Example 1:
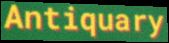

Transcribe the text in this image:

Antiquary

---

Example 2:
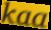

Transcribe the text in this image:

kaa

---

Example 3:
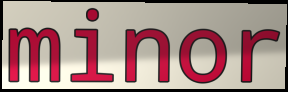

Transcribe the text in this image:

minor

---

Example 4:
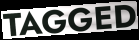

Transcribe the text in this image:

TAGGED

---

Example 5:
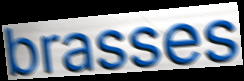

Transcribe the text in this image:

brasses